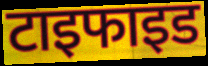
टाइफाइड